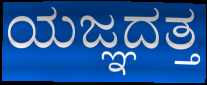
ಯಜ್ಞದತ್ತ